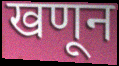
खणून